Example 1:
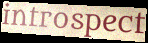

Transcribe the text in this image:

introspect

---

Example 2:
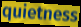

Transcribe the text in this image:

quietness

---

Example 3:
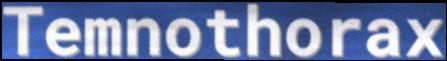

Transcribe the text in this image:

Temnothorax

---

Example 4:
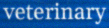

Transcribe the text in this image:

veterinary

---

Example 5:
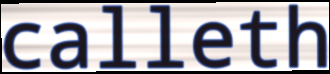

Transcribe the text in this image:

calleth